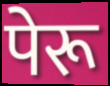
पेरू